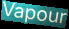
Vapour